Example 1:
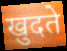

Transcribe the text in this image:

खुदते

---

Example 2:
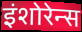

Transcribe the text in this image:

इंशोरेन्स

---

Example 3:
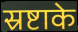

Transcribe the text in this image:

स्रष्टाके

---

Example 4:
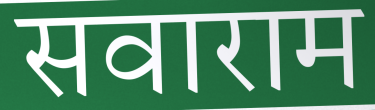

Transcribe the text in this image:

सवाराम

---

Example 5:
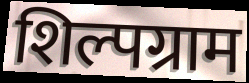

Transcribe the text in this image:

शिल्पग्राम